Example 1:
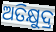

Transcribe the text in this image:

ଅତିକ୍ଷୁଦ୍ର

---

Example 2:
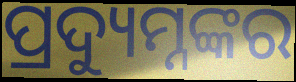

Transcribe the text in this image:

ପ୍ରଦ୍ୟୁମ୍ନଙ୍କର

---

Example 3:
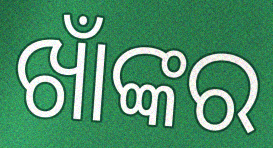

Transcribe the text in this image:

ଖାଁଙ୍କର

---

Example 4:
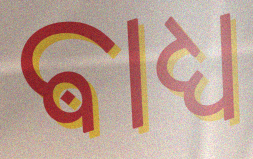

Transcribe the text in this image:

ଵାଧ୍ୟ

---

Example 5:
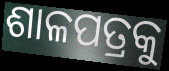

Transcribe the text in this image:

ଶାଳପତ୍ରକୁ